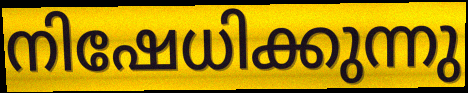
നിഷേധിക്കുന്നു